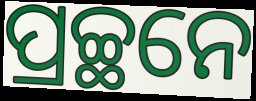
ପ୍ରଚ୍ଛନେ